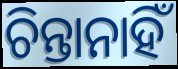
ଚିନ୍ତାନାହିଁ